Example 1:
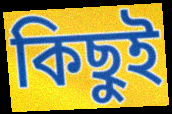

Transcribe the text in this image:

কিছুই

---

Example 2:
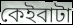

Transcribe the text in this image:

কেইবাটা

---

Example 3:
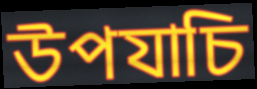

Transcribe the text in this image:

উপযাচি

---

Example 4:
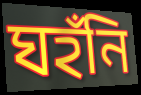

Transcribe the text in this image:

ঘহঁনি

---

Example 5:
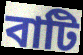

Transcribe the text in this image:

বাটি